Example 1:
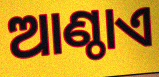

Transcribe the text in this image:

ଆଣ୍ଠାଏ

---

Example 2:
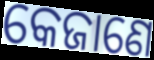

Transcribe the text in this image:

କେଜାଣେ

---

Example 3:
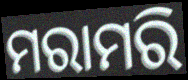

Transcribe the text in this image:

ମରାମରି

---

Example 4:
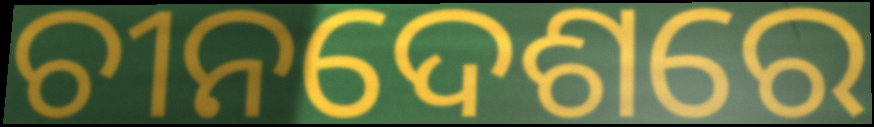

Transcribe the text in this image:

ଚୀନଦେଶରେ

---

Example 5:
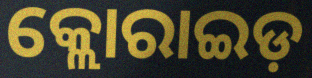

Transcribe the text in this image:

କ୍ଲୋରାଇଡ଼